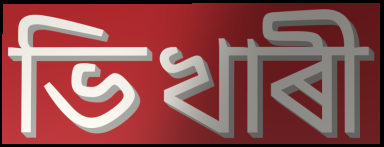
ভিখাৰী